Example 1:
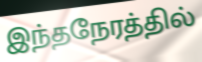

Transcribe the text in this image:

இந்தநேரத்தில்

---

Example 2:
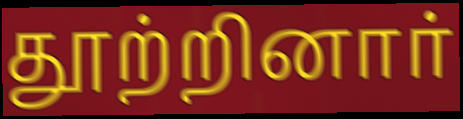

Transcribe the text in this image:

தூற்றினார்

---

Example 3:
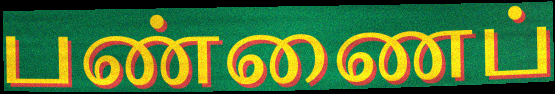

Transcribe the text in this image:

பண்ணைப்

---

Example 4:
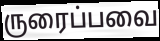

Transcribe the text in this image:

ருரைப்பவை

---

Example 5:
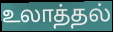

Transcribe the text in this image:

உலாத்தல்